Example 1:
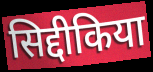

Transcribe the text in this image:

सिद्दीकिया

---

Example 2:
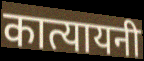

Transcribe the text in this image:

कात्यायनी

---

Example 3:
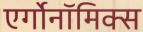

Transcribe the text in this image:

एर्गोनॉमिक्स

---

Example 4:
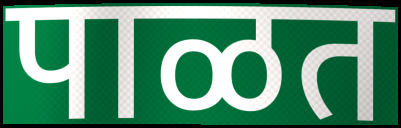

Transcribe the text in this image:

पाळत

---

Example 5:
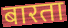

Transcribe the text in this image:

बारता